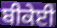
ਬੀਕੇਈ